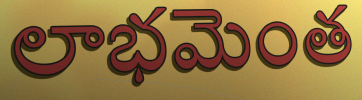
లాభమెంత